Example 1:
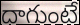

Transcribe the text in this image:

దాగుంటే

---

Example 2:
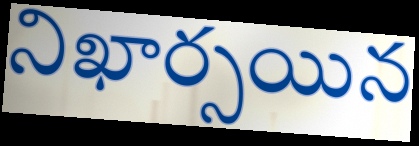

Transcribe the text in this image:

నిఖార్సయిన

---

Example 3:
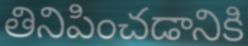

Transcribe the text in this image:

తినిపించడానికి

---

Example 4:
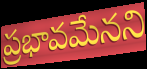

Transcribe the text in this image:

ప్రభావమేనని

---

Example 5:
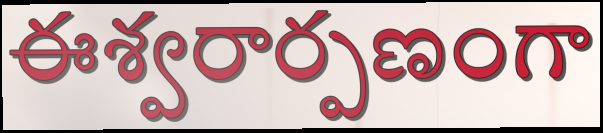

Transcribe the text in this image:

ఈశ్వరార్పణంగా